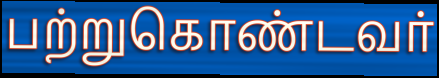
பற்றுகொண்டவர்